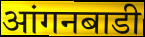
आंगनबाडी